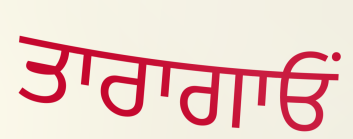
ਤਾਰਾਗਾਓਂ